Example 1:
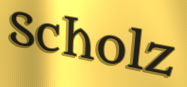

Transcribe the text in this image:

Scholz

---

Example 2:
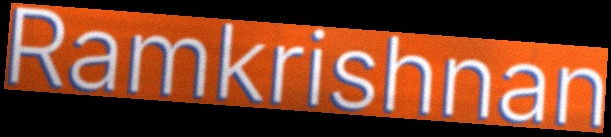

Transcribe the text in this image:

Ramkrishnan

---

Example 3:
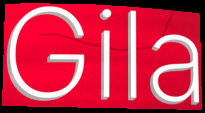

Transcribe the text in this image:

Gila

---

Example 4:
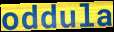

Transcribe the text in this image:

oddula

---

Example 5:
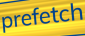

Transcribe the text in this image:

prefetch